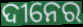
ଦୀନେର